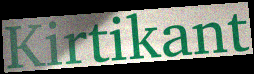
Kirtikant